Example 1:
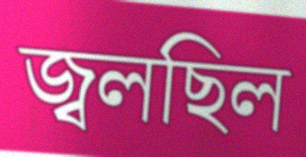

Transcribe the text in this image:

জ্বলছিল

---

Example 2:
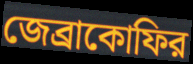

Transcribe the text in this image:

জেব্রাকোফির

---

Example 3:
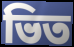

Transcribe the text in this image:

ভিত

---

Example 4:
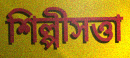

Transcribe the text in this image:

শিল্পীসত্তা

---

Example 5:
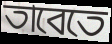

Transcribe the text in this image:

তাবেতে